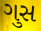
ગુસ